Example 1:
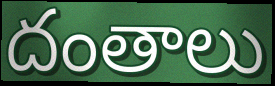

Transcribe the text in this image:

దంతాలు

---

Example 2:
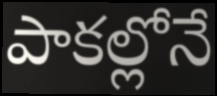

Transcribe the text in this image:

పాకల్లోనే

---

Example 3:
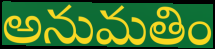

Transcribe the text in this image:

అనుమతిం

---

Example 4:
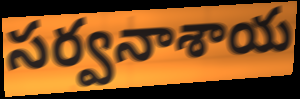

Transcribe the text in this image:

సర్వనాశాయ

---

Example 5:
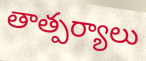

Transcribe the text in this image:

తాత్పర్యాలు